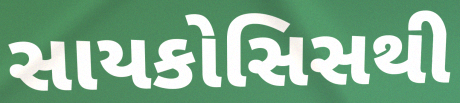
સાયકોસિસથી